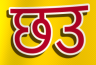
छउ